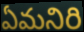
ఏమనిరి